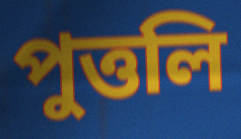
পুত্তলি